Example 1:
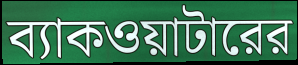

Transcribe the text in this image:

ব্যাকওয়াটারের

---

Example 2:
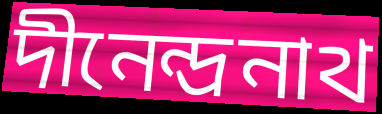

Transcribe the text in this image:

দীনেন্দ্রনাথ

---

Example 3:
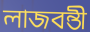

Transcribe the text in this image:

লাজবন্তী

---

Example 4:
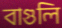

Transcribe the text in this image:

বাগুলি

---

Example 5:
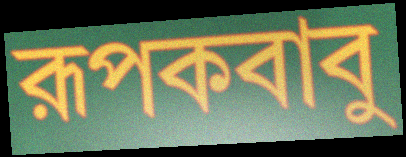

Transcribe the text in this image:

রূপকবাবু